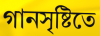
গানসৃষ্টিতে